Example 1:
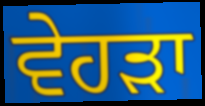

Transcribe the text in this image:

ਵੇਹੜਾ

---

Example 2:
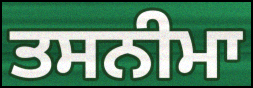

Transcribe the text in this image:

ਤਸਨੀਮਾ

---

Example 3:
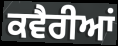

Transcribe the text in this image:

ਕਵੈਰੀਆਂ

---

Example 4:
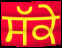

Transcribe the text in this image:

ਸੱਕੇ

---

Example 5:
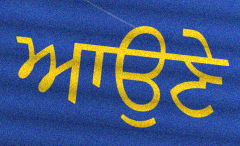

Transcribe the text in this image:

ਆਉਣੇ